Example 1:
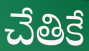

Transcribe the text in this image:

చేతికే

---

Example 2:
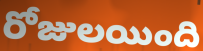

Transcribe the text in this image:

రోజులయింది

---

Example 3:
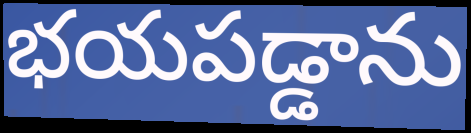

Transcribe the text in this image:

భయపడ్డాను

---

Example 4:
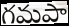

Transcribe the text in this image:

గమపా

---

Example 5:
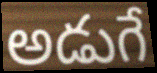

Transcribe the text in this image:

అడుగే